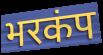
भरकंप